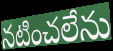
నటించలేను